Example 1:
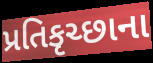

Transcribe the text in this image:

પ્રતિકૃચ્છાના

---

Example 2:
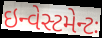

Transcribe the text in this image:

ઇન્વેસ્ટમેન્ટઃ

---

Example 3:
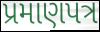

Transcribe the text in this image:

પ્રમાણપત્ર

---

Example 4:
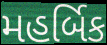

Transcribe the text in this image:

મહર્બિક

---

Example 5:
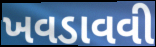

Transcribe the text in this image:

ખવડાવવી